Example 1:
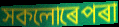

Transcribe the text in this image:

সকলোৰেপৰা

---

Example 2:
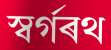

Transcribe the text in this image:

স্বৰ্গৰথ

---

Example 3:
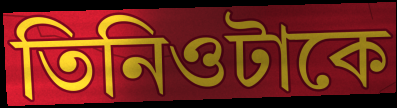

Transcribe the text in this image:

তিনিওটাকে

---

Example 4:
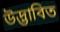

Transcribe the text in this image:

উদ্ভাবিত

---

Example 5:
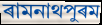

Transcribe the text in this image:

ৰামনাথপুৰম